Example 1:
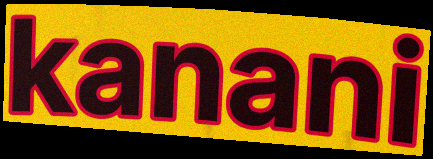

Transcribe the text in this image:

kanani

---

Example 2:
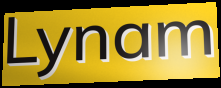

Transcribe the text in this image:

Lynam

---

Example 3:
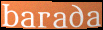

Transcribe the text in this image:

barada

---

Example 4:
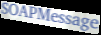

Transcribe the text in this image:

SOAPMessage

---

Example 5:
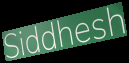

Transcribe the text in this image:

Siddhesh